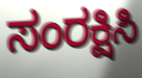
ಸಂರಕ್ಷಿಸಿ